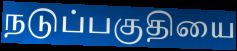
நடுப்பகுதியை